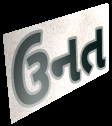
ઉનત